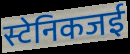
स्टेनिकजई